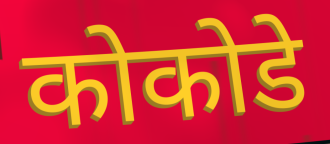
कोकोडे